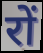
रों